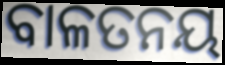
ବାଳତନୟ